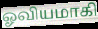
ஓவியமாகி